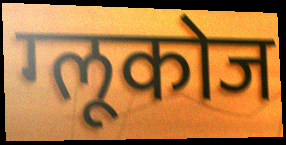
ग्लूकोज